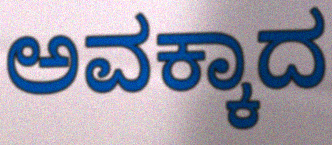
ಅವಕ್ಕಾದ